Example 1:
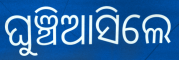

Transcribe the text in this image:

ଘୁଞ୍ଚିଆସିଲେ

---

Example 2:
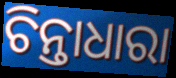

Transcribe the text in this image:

ଚିନ୍ତାଧାରା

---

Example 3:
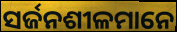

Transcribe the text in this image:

ସର୍ଜନଶୀଳମାନେ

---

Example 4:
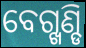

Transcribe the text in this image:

ବେଗ୍ଖଣ୍ଡି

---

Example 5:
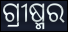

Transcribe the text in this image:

ଗ୍ରୀଷ୍ମର